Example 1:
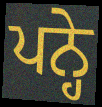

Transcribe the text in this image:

ਪਨ੍ਹੇ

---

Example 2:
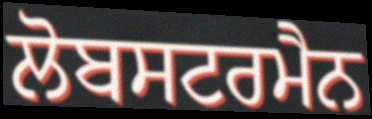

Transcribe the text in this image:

ਲੋਬਸਟਰਮੈਨ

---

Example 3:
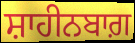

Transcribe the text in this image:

ਸ਼ਾਹੀਨਬਾਗ਼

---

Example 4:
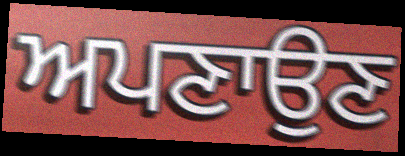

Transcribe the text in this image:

ਅਪਣਾਉਣ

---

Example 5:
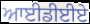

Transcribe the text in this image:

ਆਈਡੀਈਏ